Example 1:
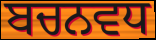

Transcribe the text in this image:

ਬਚਨਵਧ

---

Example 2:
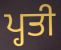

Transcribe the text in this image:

ਪ੍ਹਤੀ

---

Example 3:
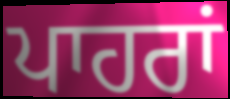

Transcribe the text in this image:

ਪਾਹਰਾਂ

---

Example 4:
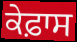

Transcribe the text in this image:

ਕੇਫ਼ਾਸ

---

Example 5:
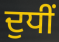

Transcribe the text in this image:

ਦੁਧੀਂ